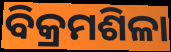
ବିକ୍ରମଶିଳା